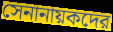
সেনানায়কদের